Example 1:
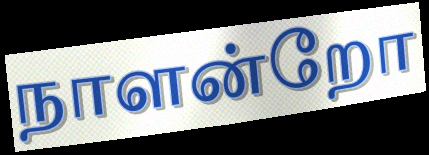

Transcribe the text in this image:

நாளன்றோ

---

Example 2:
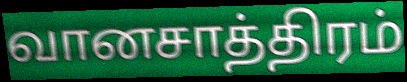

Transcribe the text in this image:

வானசாத்திரம்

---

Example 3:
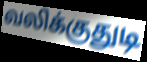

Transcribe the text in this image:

வலிக்குதுடி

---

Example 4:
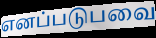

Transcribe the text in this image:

எனப்படுபவை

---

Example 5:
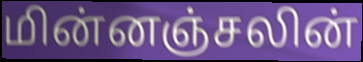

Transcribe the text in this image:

மின்னஞ்சலின்